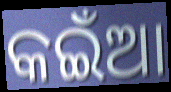
କଇଁଆ